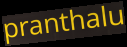
pranthalu